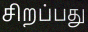
சிறப்பது